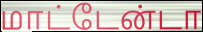
மாட்டேன்டா